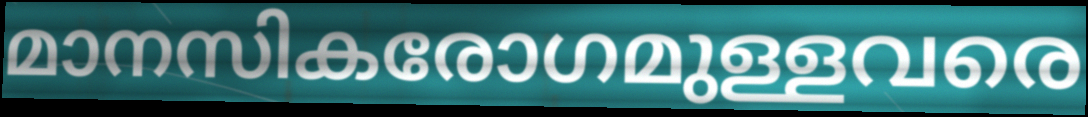
മാനസികരോഗമുള്ളവരെ